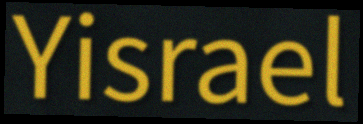
Yisrael